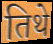
तिथे